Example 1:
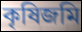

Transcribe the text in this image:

কৃষিজমি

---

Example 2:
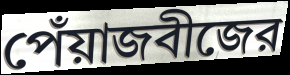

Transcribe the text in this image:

পেঁয়াজবীজের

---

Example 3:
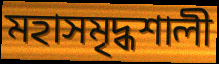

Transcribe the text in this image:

মহাসমৃদ্ধশালী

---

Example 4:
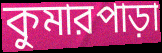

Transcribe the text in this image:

কুমারপাড়া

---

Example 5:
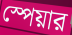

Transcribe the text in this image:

স্পেয়ার